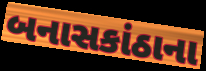
બનાસકાંઠાના